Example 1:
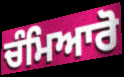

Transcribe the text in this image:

ਚੰਮਿਆਰੋ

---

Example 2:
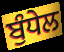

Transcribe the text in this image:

ਬੁੰਧੇਲ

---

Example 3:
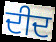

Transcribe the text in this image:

ਦੀਦ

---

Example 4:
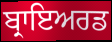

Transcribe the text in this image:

ਬ੍ਰਾਇਅਰਡ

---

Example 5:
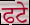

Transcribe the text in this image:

ਫਟੇ